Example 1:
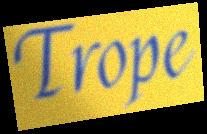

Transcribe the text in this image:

Trope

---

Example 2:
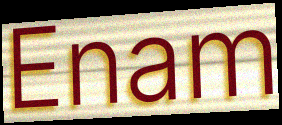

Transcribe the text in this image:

Enam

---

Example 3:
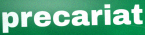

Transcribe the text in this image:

precariat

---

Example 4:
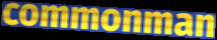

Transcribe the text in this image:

commonman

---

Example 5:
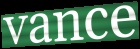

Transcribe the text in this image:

vance